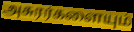
அசுரர்களையும்